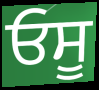
ਓਸੂ